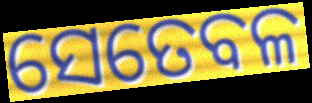
ସେତେବଳ